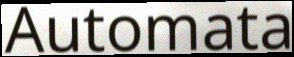
Automata